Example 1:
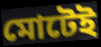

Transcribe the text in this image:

মোটেই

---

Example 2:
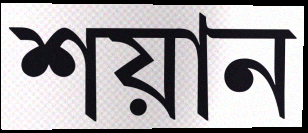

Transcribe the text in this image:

শয়ান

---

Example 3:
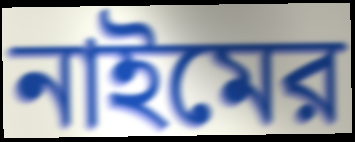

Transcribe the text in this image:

নাইমের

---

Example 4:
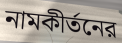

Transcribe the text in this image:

নামকীর্তনের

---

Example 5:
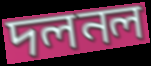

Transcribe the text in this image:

দলনল